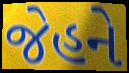
જેહને